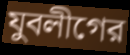
যুবলীগের